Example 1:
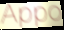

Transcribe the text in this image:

Appo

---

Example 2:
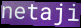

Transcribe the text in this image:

netaji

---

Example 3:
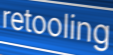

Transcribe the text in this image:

retooling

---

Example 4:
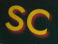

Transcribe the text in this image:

sc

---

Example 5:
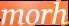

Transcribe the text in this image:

morh